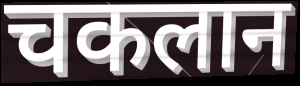
चकलान